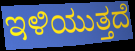
ಇಳಿಯುತ್ತದೆ